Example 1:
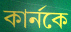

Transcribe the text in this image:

কার্নকে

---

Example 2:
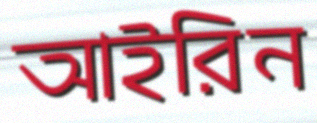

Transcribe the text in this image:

আইরিন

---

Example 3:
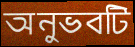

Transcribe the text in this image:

অনুভবটি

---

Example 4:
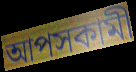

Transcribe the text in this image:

আপসকামী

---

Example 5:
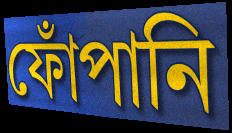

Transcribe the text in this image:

ফোঁপানি